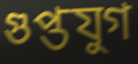
গুপ্তযুগ